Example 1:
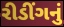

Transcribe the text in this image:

રીડીંગનું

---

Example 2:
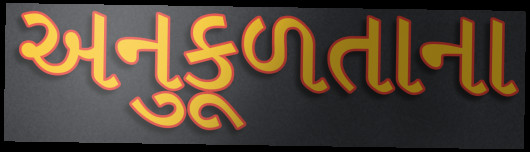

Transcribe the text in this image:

અનુકૂળતાના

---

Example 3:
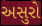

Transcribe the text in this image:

અસુરો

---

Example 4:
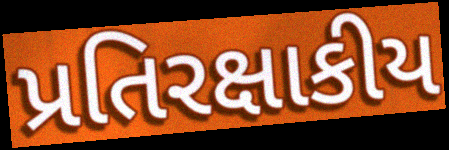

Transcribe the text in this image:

પ્રતિરક્ષાકીય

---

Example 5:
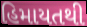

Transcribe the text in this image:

હિમાયતથી